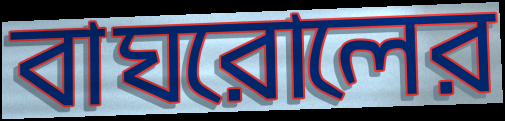
বাঘরোলের